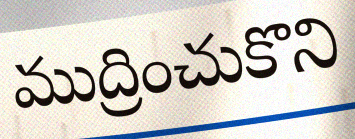
ముద్రించుకొని